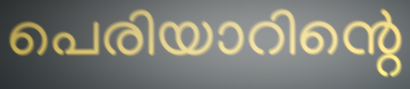
പെരിയാറിന്റെ